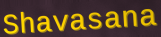
Shavasana